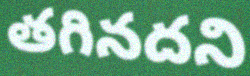
తగినదని